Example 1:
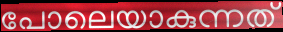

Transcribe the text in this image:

പോലെയാകുന്നത്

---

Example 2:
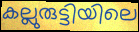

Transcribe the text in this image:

കല്ലുരുട്ടിയിലെ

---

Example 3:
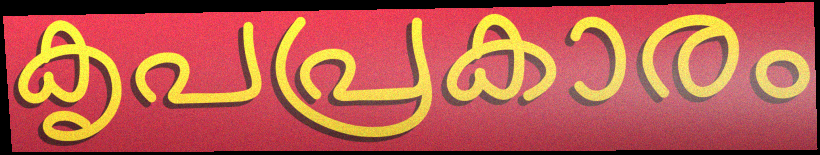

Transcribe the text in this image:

കൃപപ്രകാരം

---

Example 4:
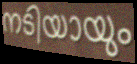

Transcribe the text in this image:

നടിയായും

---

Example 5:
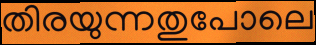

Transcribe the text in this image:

തിരയുന്നതുപോലെ